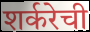
शर्करेची